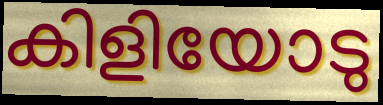
കിളിയോടു